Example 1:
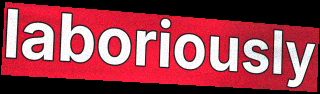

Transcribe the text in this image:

laboriously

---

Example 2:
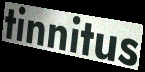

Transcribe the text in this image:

tinnitus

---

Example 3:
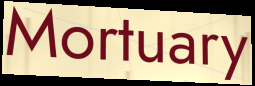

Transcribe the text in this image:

Mortuary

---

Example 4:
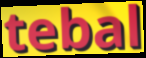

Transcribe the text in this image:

tebal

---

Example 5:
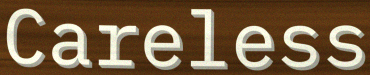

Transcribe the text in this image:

Careless